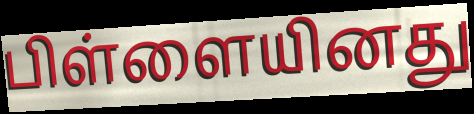
பிள்ளையினது